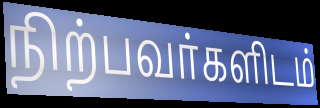
நிற்பவர்களிடம்